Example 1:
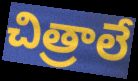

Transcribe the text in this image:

చిత్రాలే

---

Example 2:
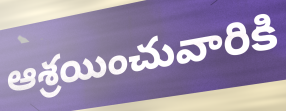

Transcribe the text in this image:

ఆశ్రయించువారికి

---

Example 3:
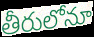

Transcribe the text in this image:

తీరులోనూ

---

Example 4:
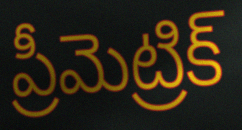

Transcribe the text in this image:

ప్రీమెట్రిక్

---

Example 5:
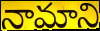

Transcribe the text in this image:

నామాని